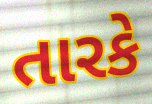
તારકે